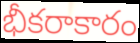
భీకరాకారం